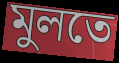
মুলতে